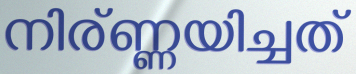
നിര്ണ്ണയിച്ചത്